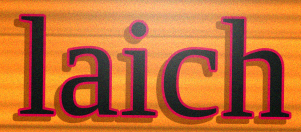
laich